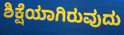
ಶಿಕ್ಷೆಯಾಗಿರುವುದು